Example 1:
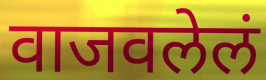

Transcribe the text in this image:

वाजवलेलं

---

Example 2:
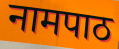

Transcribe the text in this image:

नामपाठ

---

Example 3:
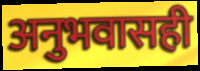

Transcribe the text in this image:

अनुभवासही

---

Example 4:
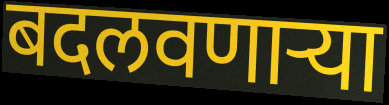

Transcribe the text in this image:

बदलवणार्‍या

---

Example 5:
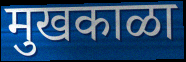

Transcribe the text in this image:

मुखकाळा